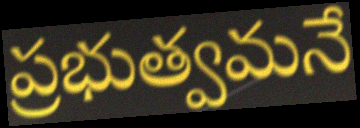
ప్రభుత్వమనే